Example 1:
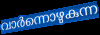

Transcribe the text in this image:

വാർന്നൊഴുകുന്ന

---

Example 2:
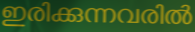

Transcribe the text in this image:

ഇരിക്കുന്നവരിൽ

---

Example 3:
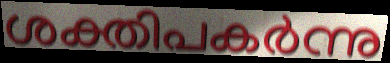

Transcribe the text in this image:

ശക്തിപകർന്നു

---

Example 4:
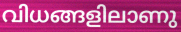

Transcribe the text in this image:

വിധങ്ങളിലാണു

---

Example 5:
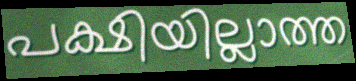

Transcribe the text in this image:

പക്ഷിയില്ലാത്ത